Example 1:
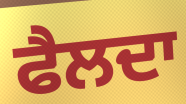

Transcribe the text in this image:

ਫੈਲਦਾ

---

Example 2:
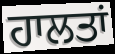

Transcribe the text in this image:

ਹਾਲਤਾਂ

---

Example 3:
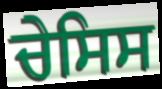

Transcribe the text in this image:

ਚੇਸਿਸ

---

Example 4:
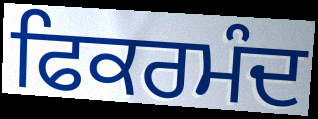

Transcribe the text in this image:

ਫਿਕਰਮੰਦ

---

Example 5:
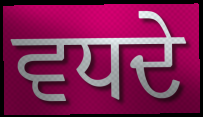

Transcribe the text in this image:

ਵਧਦੇ